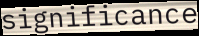
significance